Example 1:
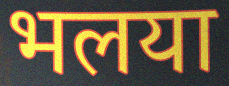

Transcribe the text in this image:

भलया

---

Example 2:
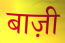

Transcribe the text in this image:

बाज़ी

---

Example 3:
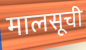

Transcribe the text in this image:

मालसूची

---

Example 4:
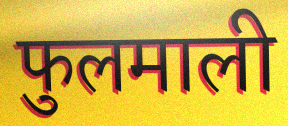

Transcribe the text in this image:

फुलमाली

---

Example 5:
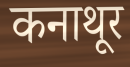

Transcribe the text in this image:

कनाथूर